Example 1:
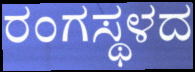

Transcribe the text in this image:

ರಂಗಸ್ಥಳದ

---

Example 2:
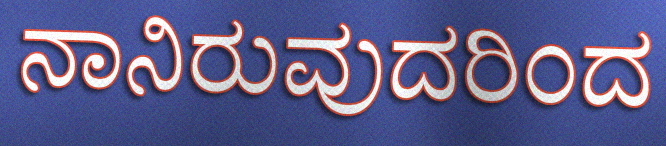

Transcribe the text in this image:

ನಾನಿರುವುದರಿಂದ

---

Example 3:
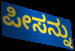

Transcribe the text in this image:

ಪೀಸನ್ನು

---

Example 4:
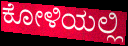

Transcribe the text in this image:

ಕೋಳಿಯಲ್ಲಿ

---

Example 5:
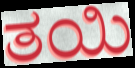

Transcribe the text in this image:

ತಯಿ